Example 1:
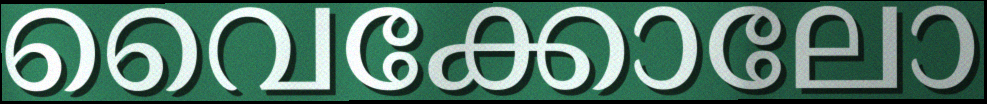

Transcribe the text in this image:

വൈക്കോലോ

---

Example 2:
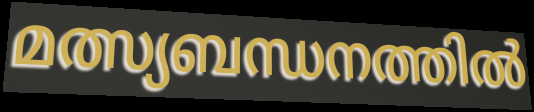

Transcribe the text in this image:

മത്സ്യബന്ധനത്തിൽ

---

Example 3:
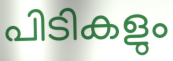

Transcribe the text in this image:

പിടികളും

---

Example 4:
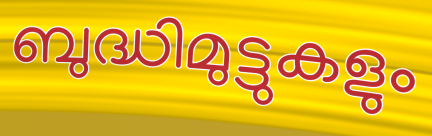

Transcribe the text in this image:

ബുദ്ധിമുട്ടുകളും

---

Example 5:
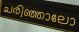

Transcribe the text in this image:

ചരിഞ്ഞാലോ